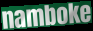
namboke